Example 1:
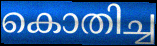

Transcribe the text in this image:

കൊതിച്ച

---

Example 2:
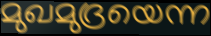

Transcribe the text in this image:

മുഖമുദ്രയെന്ന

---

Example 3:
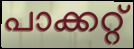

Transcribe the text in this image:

പാക്കറ്റ്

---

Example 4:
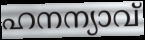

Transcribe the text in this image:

ഹനന്യാവ്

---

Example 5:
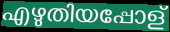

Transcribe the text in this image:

എഴുതിയപ്പോള്